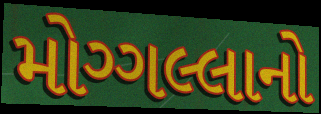
મોગ્ગલ્લાનો